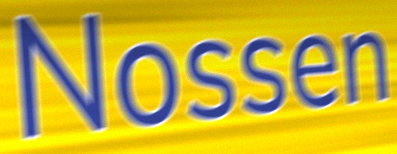
Nossen